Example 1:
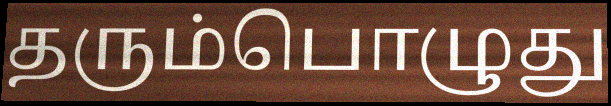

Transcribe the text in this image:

தரும்பொழுது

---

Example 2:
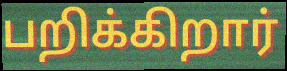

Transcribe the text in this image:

பறிக்கிறார்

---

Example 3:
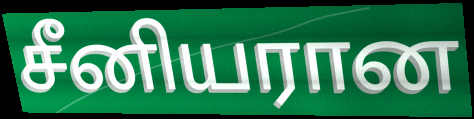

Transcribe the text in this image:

சீனியரான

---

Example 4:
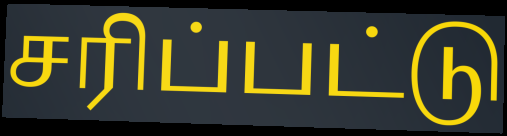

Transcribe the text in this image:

சரிப்பட்டு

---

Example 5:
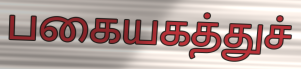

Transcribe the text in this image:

பகையகத்துச்